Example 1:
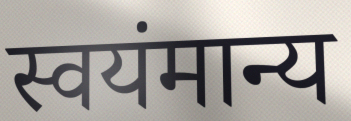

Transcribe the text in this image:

स्वयंमान्य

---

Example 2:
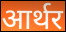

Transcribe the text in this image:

आर्थर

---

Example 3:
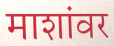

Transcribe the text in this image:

माशांवर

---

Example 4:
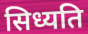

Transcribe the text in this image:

सिध्यति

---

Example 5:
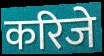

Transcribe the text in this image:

करिजे